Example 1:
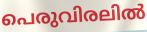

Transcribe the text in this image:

പെരുവിരലിൽ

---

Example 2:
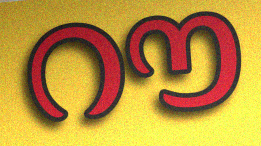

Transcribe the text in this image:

റൗ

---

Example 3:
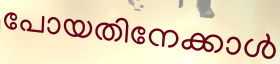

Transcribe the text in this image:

പോയതിനേക്കാൾ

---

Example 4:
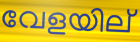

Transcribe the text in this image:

വേളയില്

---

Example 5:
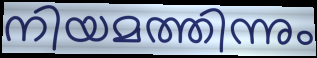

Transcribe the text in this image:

നിയമത്തിന്നും